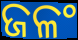
ଜଳଂ